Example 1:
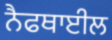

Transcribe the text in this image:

ਨੈਫਥਾਈਲ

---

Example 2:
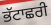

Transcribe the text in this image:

ਭੱਟਾਛਰੀ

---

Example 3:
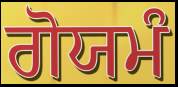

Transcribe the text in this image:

ਗੋਯਮੰ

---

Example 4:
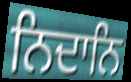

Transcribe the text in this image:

ਨਿਦਾਨਿ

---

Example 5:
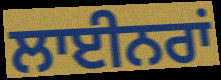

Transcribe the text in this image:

ਲਾਈਨਰਾਂ